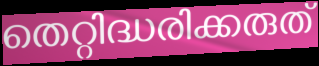
തെറ്റിദ്ധരിക്കരുത്